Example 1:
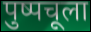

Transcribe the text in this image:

पुष्पचूला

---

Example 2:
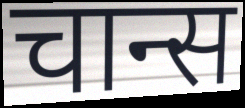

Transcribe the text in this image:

चान्स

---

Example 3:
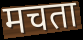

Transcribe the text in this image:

मचता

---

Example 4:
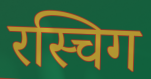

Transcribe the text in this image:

रस्चिग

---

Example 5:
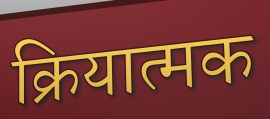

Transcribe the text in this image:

क्रियात्मक